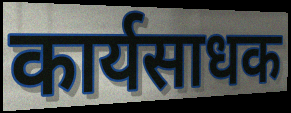
कार्यसाधक